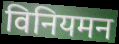
विनियमन